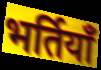
भर्तियाँ